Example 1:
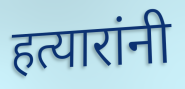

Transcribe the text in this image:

हत्यारांनी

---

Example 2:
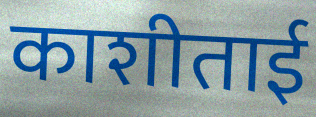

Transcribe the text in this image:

काशीताई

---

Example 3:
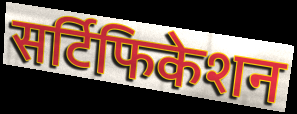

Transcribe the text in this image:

सर्टिफिकेशन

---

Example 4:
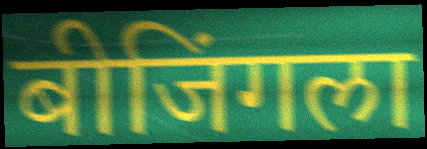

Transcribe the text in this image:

बीजिंगला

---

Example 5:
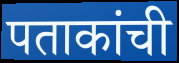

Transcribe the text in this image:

पताकांची